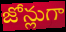
జోన్లుగా